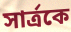
সার্ত্রকে